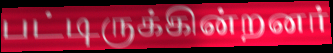
பட்டிருக்கின்றனர்